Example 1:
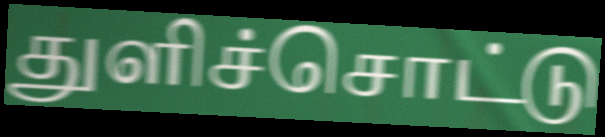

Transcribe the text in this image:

துளிச்சொட்டு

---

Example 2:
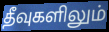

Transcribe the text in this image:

தீவுகளிலும்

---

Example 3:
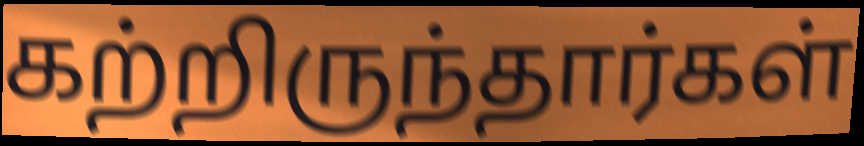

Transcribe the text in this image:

கற்றிருந்தார்கள்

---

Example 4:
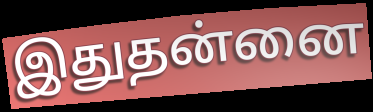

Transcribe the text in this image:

இதுதன்னை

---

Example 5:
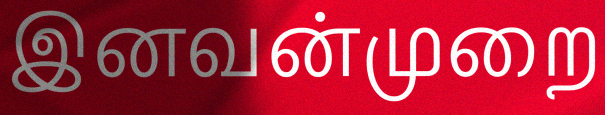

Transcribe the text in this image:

இனவன்முறை